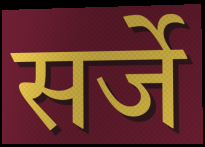
सर्जे